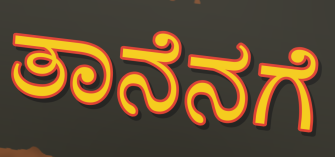
ತಾನೆನಗೆ